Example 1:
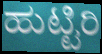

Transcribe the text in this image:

ಹುಟ್ಟಿರಿ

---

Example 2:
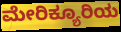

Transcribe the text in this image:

ಮೇರಿಕ್ಯೂರಿಯ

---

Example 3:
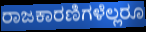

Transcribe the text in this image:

ರಾಜಕಾರಣಿಗಳೆಲ್ಲರೂ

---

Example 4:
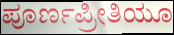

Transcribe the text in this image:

ಪೂರ್ಣಪ್ರೀತಿಯೂ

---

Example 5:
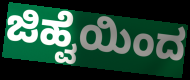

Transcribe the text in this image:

ಜಿಹ್ವೆಯಿಂದ